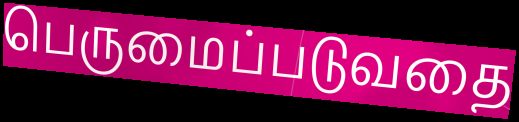
பெருமைப்படுவதை